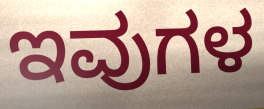
ಇವುಗಳ